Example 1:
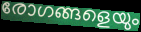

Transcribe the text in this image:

രോഗങ്ങളെയും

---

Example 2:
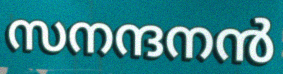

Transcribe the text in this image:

സനന്ദനൻ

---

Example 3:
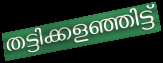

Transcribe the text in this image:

തട്ടിക്കളഞ്ഞിട്ട്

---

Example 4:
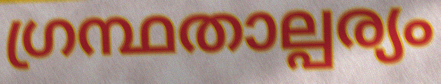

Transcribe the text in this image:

ഗ്രന്ഥതാല്പര്യം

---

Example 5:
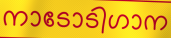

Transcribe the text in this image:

നാടോടിഗാന